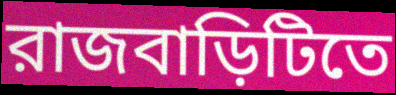
রাজবাড়িটিতে